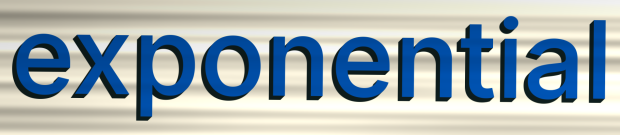
exponential